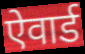
ऐवार्ड